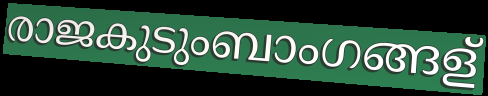
രാജകുടുംബാംഗങ്ങള്